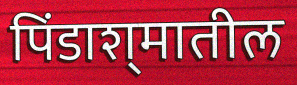
पिंडाश्मातील